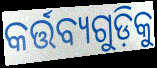
କର୍ତ୍ତବ୍ୟଗୁଡ଼ିକୁ